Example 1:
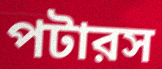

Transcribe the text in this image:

পটারস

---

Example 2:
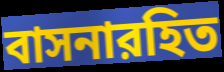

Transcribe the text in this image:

বাসনারহিত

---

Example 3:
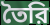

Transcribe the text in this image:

তৈরি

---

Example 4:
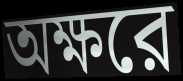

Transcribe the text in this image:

অক্ষরে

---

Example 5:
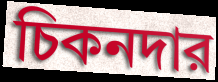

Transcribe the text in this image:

চিকনদার